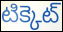
టిక్కెట్